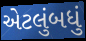
એટલુંબધું